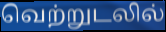
வெற்றுடலில்